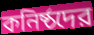
কনিষ্ঠদের